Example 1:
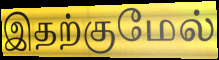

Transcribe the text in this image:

இதற்குமேல்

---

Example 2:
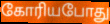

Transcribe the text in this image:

கோரியபோது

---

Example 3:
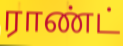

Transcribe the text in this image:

ராண்ட்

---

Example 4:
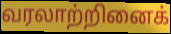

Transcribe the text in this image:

வரலாற்றினைக்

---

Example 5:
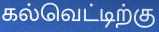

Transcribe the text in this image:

கல்வெட்டிற்கு